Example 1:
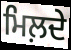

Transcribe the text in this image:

ਮਿਲ਼ਦੇ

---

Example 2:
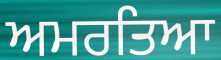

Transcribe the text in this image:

ਅਮਰਤਿਆ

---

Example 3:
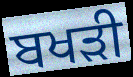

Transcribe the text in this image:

ਬਖੜੀ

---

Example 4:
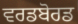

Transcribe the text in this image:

ਵਰਡਬੋਰਡ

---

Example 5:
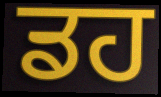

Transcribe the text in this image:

ਡਹ